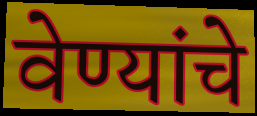
वेण्यांचे